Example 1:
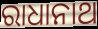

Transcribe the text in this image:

ରାଧାନାଥ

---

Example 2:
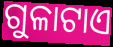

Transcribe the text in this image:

ଗୁଳାଟାଏ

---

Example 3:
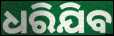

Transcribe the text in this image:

ଧରିଯିବ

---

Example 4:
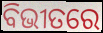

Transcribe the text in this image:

ବିଭୀତରେ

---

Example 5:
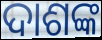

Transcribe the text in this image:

ଦାଶଙ୍କ